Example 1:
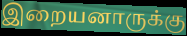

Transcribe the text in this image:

இறையனாருக்கு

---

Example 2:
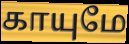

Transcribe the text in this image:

காயுமே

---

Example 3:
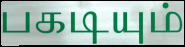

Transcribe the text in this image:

பகடியும்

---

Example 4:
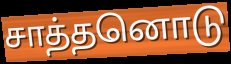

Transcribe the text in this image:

சாத்தனொடு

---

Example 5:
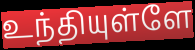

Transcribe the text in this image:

உந்தியுள்ளே